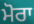
ਮੋਰਾ